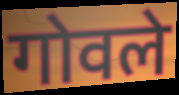
गोवले